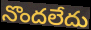
నొందలేదు